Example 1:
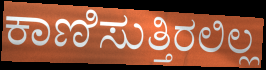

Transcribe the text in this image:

ಕಾಣಿಸುತ್ತಿರಲಿಲ್ಲ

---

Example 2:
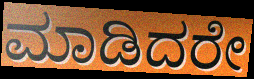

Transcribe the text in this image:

ಮಾಡಿದರೇ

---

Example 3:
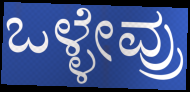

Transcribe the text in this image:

ಒಳ್ಳೇವ್ರು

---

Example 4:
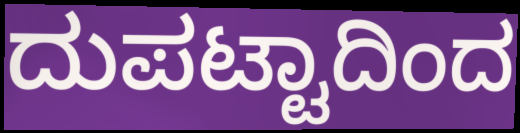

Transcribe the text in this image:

ದುಪಟ್ಟಾದಿಂದ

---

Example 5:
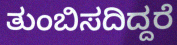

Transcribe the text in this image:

ತುಂಬಿಸದಿದ್ದರೆ